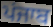
ਪਂਜਾਬ